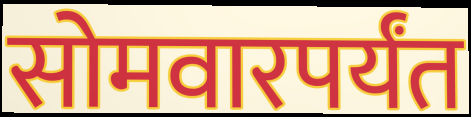
सोमवारपर्यंत